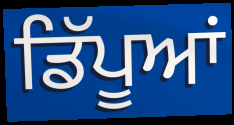
ਡਿੱਪੂਆਂ